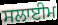
ਸਲਾਈਮ